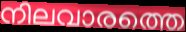
നിലവാരത്തെ